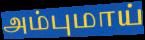
அம்புமாய்